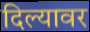
दिल्यावर